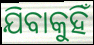
ଯିବାକୁହିଁ